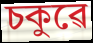
চকুৱে